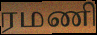
ரமணி